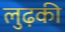
लुढ़की